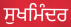
ਸੁਖਮਿੰਦਰ